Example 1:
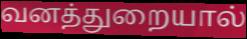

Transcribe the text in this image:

வனத்துறையால்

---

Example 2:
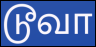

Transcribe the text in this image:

டூவா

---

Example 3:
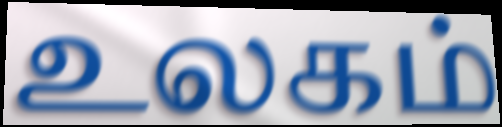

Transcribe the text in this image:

உலகம்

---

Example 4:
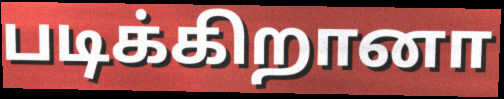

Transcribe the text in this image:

படிக்கிறானா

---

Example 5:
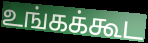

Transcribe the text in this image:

உங்கக்கூட